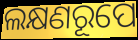
ଲକ୍ଷଣରୂପେ